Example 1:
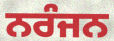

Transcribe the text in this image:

ਨਰੰਜਨ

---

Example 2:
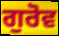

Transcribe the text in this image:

ਗੁਰੋਵ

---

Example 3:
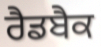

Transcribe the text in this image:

ਰੈਡਬੈਕ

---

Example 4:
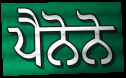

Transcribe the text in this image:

ਪੈਨੋਨੋ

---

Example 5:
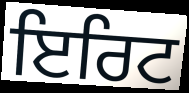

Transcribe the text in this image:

ਇਰਿਟ